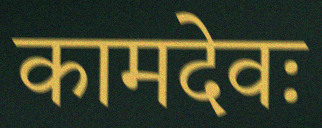
कामदेवः